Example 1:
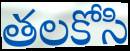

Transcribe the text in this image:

తలకోసి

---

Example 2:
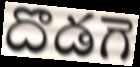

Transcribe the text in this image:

దొడగె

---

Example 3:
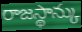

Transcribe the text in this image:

రాజస్థాన్కు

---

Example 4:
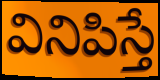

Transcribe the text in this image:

వినిపిస్తే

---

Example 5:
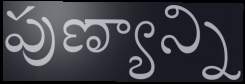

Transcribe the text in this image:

పుణ్యాన్ని